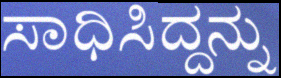
ಸಾಧಿಸಿದ್ದನ್ನು